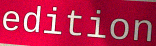
edition